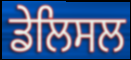
ਡੇਲਿਸਲ